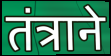
तंत्राने